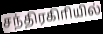
சந்திரகிரியில்